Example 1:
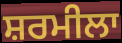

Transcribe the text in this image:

ਸ਼ਰਮੀਲਾ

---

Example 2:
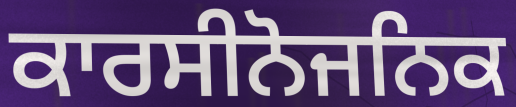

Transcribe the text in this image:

ਕਾਰਸੀਨੋਜਨਿਕ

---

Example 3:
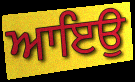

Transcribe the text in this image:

ਆਇਉ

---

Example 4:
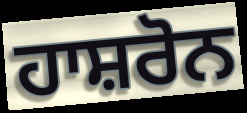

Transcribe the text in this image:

ਹਾਸ਼ਰੋਨ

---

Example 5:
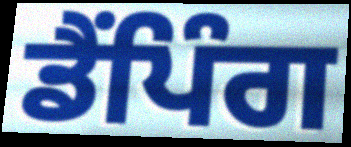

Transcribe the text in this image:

ਡੈਂਪਿੰਗ